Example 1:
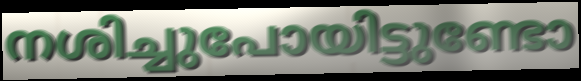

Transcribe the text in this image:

നശിച്ചുപോയിട്ടുണ്ടോ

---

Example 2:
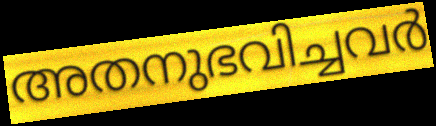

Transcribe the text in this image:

അതനുഭവിച്ചവർ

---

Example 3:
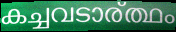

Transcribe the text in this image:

കച്ചവടാര്ത്ഥം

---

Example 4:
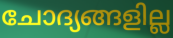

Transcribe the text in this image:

ചോദ്യങ്ങളില്ല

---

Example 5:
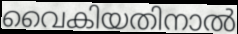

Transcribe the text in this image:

വൈകിയതിനാൽ